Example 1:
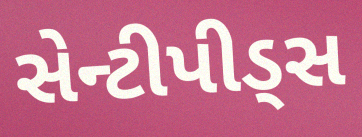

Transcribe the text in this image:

સેન્ટીપીડ્સ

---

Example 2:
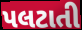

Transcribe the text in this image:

પલટાતી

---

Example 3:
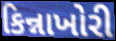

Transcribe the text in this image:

કિન્નાખોરી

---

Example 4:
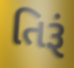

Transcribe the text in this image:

તિરૂં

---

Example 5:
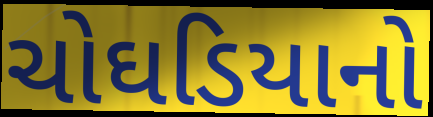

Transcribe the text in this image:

ચોઘડિયાનો